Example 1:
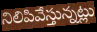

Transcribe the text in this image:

నిలిపివేస్తున్నట్లు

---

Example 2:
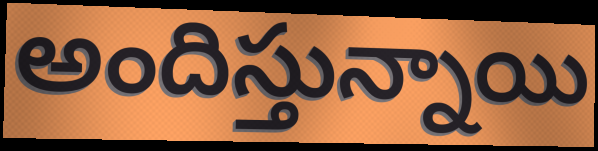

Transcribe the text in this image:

అందిస్తున్నాయి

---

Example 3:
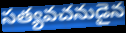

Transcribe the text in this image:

సత్యవచనుడైన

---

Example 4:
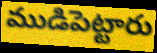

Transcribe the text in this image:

ముడిపెట్టారు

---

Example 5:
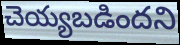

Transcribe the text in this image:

చెయ్యబడిందని